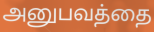
அனுபவத்தை